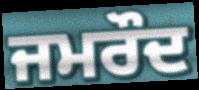
ਜਮਰੌਦ